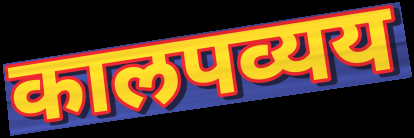
कालपव्यय